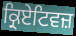
ਕ੍ਰਿਏਟਿਵਜ਼